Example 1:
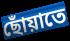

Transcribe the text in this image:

ছোঁয়াতে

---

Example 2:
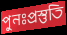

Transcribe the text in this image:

পুনঃপ্রস্তুতি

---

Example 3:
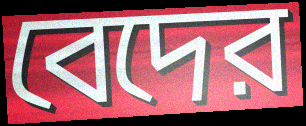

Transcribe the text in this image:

বেদের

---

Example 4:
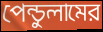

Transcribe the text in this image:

পেন্ডুলামের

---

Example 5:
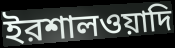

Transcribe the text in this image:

ইরশালওয়াদি